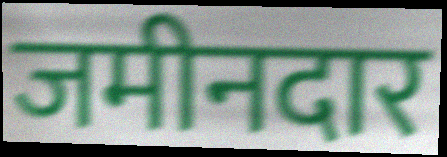
जमीनदार